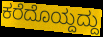
ಕರೆದೊಯ್ದದ್ದು